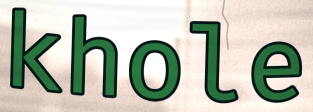
khole